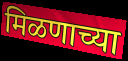
मिळणाच्या